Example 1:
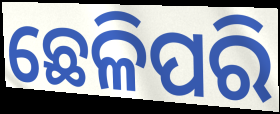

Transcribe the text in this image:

ଛେଳିପରି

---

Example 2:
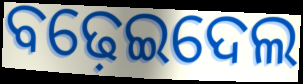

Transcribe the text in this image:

ବଢ଼େଇଦେଲ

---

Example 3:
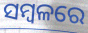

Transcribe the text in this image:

ସମ୍ବଳରେ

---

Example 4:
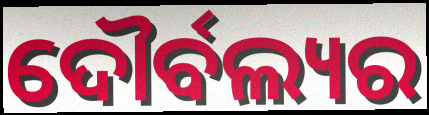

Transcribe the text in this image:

ଦୌର୍ବଲ୍ୟର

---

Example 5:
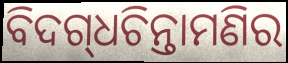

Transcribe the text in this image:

ବିଦଗ୍‌ଧଚିନ୍ତାମଣିର